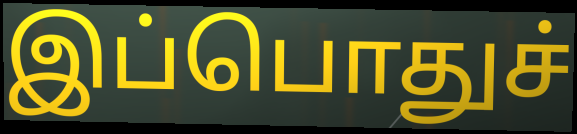
இப்பொதுச்